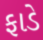
ફાડે